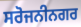
ਸਰੋਜਨੀਨਗਰ